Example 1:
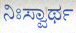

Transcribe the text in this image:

ನಿಃಸ್ವಾರ್ಥ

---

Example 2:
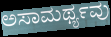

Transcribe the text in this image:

ಅಸಾಮರ್ಥ್ಯವು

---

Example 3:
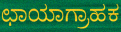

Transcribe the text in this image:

ಛಾಯಾಗ್ರಾಹಕ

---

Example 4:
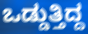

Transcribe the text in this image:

ಒಡ್ಡುತ್ತಿದ್ದ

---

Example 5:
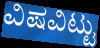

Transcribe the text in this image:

ವಿಷವಿಟ್ಟು